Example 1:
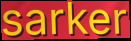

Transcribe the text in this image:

sarker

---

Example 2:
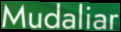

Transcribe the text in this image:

Mudaliar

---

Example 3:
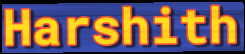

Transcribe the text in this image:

Harshith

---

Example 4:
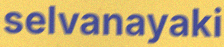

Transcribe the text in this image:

selvanayaki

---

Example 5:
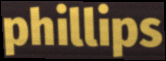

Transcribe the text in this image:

phillips